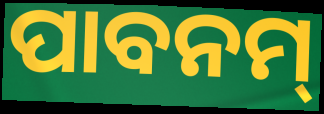
ପାବନମ୍